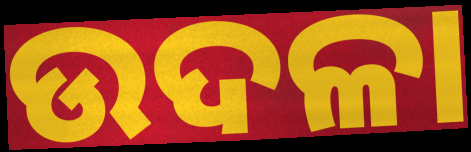
ଉଦଳା